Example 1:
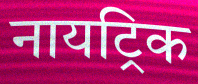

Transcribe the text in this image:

नायट्रिक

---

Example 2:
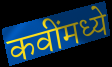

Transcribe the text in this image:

कवींमध्ये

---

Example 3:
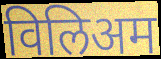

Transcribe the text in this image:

विलिअम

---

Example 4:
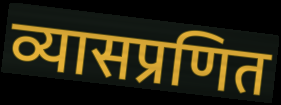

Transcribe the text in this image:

व्यासप्रणित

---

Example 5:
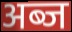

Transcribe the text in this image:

अब्ज